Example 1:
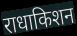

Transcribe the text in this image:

राधाकिशन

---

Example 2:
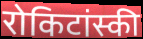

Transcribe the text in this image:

रोकिटांस्की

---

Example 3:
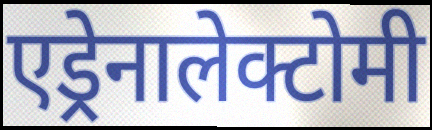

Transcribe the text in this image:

एड्रेनालेक्टोमी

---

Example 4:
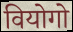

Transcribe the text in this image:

वियोगो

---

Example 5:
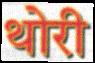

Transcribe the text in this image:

थोरी